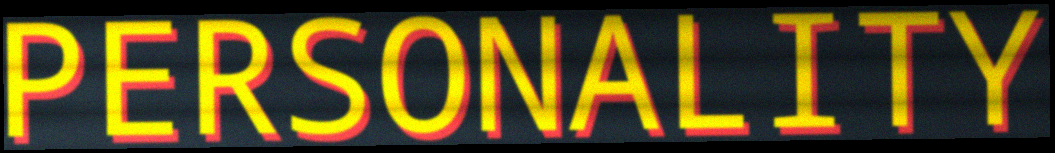
PERSONALITY